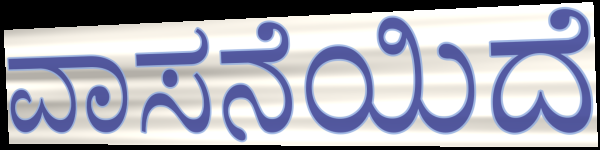
ವಾಸನೆಯಿದೆ